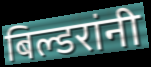
बिल्डरांनी